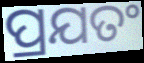
ପ୍ରଯତଂ